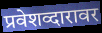
प्रवेशव्दारावर